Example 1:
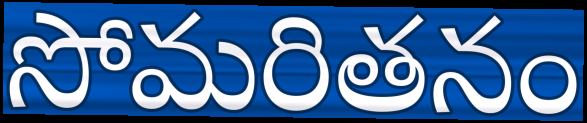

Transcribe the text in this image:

సోమరితనం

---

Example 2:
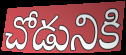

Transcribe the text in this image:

చోడునికి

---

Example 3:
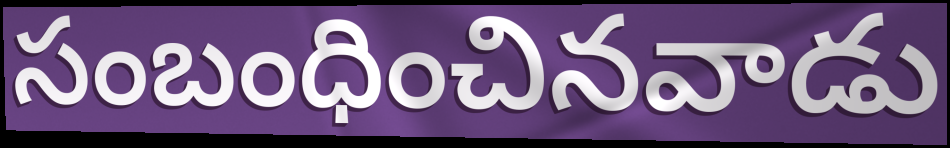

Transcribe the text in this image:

సంబంధించినవాడు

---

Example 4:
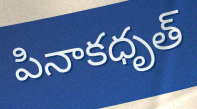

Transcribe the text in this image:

పినాకధృత్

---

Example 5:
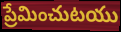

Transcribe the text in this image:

ప్రేమించుటయు